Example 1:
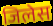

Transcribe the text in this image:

जिलेस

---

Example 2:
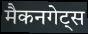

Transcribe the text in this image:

मैकनगेट्स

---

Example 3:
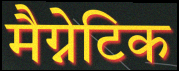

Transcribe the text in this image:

मैग्नेटिक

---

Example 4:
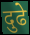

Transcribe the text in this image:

दुढे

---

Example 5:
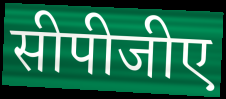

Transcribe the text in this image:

सीपीजीए